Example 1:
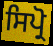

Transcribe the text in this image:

ਸਿਪ੍ਰੋ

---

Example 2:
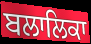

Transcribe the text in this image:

ਬਲਾਲਿਕਾ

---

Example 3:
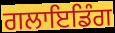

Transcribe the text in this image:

ਗਲਾਇਡਿੰਗ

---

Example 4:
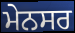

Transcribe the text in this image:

ਮੇਨਸਰ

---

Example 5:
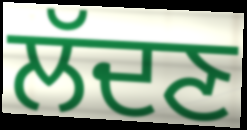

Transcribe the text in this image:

ਲੱਦਣ